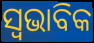
ସ୍ୱଭାବିକ